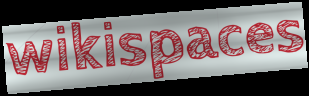
wikispaces